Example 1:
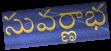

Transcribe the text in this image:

సువర్ణాభ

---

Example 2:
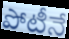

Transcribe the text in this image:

పోటీనే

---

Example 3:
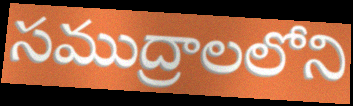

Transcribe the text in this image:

సముద్రాలలోని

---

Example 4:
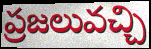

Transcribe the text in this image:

ప్రజలువచ్చి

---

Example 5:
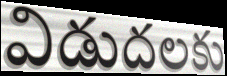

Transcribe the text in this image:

విడుదలకు